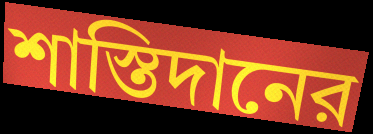
শাস্তিদানের